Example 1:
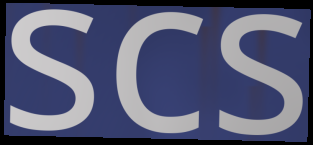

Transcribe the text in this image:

scs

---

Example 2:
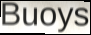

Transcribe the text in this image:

Buoys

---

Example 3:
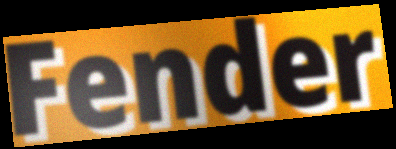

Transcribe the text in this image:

Fender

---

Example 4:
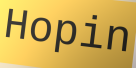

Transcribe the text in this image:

Hopin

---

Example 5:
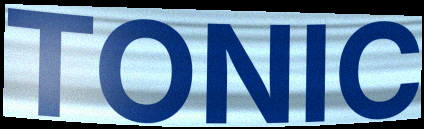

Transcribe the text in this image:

TONIC